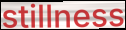
stillness